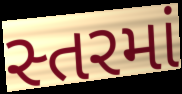
સ્તરમાં